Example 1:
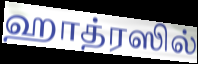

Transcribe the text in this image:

ஹாத்ரஸில்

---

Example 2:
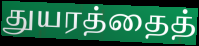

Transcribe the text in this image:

துயரத்தைத்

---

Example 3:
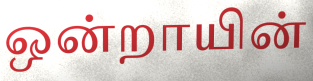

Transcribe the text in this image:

ஒன்றாயின்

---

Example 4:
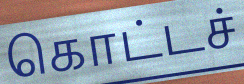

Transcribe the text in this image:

கொட்டச்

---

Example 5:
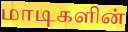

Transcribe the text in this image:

மாடிகளின்